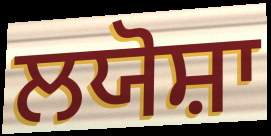
ਲਯੋਸ਼ਾ